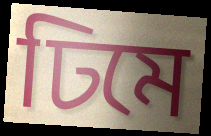
ঢিমে